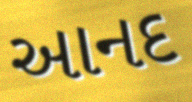
આનદ